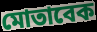
মোতাবেক